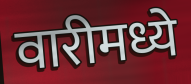
वारीमध्ये